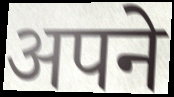
अपने